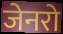
जेनरो